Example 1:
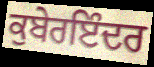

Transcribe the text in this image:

ਕੁਬੇਰਇੰਦਰ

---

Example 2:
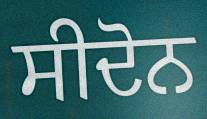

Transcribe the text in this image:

ਸੀਦੋਨ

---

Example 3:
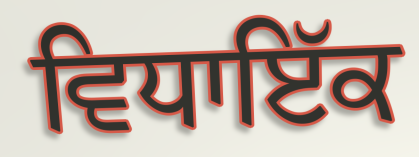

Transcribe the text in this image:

ਵਿਧਾਇੱਕ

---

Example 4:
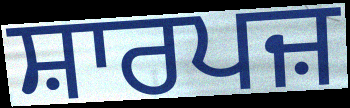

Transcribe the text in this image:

ਸ਼ਾਰਪਜ਼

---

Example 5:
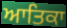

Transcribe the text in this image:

ਆਤਿਕਾ